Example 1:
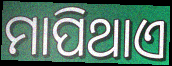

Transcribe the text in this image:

ମାପିଥାଏ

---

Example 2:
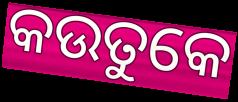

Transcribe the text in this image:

କଉତୁକେ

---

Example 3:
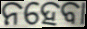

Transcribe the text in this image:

ନହେବା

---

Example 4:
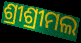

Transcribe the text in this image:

ଶ୍ରୀଶ୍ରୀମଲ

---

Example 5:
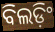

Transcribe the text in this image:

ବିଲଡ଼ିଂ